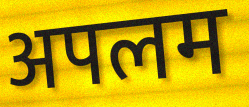
अपलम